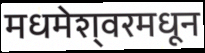
मधमेश्वरमधून